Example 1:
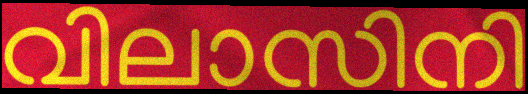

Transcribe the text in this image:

വിലാസിനി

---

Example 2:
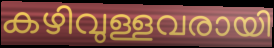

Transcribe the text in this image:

കഴിവുള്ളവരായി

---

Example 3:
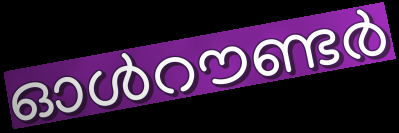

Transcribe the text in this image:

ഓൾറൗണ്ടർ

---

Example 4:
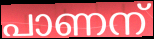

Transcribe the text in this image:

പാണന്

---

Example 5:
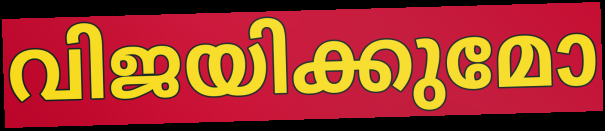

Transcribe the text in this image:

വിജയിക്കുമോ